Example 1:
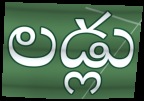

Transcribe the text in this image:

లడ్లు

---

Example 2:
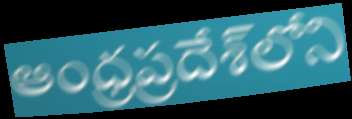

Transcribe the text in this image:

ఆంధ్రప్రదేశ్‌లోని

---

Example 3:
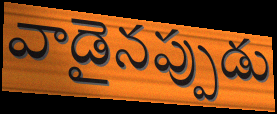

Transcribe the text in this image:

వాడైనప్పుడు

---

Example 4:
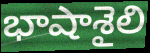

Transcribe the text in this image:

భాషాశైలి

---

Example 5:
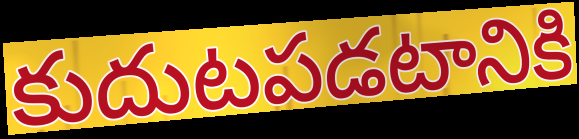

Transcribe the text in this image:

కుదుటపడటానికి